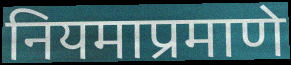
नियमाप्रमाणे